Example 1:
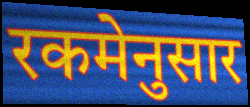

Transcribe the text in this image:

रकमेनुसार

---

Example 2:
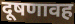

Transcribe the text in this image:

दूषणावह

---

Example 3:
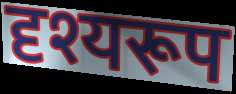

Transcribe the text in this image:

दृश्यरूप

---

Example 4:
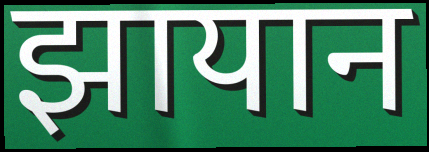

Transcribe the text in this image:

झायान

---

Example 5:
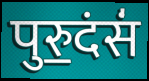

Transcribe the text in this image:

पुरु॒दंसं॑